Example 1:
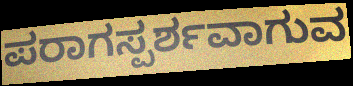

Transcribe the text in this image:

ಪರಾಗಸ್ಪರ್ಶವಾಗುವ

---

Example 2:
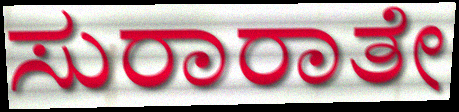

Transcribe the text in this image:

ಸುರಾರಾತೇ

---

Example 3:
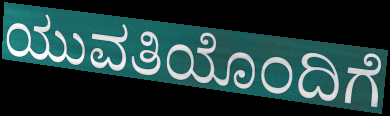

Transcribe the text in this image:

ಯುವತಿಯೊಂದಿಗೆ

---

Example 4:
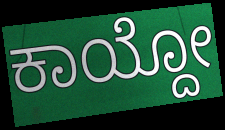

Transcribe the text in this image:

ಕಾಯ್ದೋ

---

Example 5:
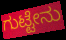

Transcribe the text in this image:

ಗುಟ್ಟೇನು